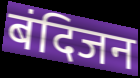
बंदिजन